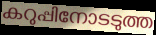
കറുപ്പിനോടടുത്ത